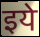
इये